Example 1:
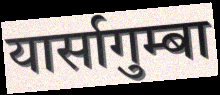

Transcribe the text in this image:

यार्सागुम्बा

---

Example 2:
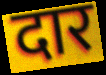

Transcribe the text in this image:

दार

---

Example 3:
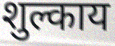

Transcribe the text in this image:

शुल्काय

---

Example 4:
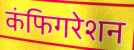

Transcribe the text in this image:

कंफिगरेशन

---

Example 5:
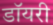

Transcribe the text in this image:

डॉयरी